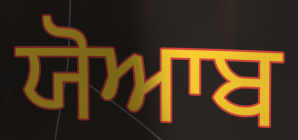
ਯੋਆਬ